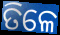
ତିଳେ